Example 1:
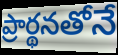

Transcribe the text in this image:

ప్రార్థనతోనే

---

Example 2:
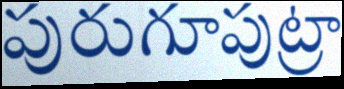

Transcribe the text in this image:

పురుగూపుట్రా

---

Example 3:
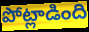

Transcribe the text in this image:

పోట్లాడింది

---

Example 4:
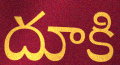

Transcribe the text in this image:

దూకి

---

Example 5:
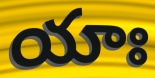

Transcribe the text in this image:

యాః